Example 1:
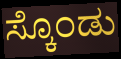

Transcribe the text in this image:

ಸ್ಕೊಂಡು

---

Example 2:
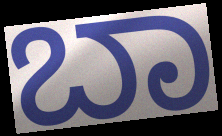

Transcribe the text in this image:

ಬಾ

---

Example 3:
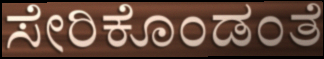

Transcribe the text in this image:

ಸೇರಿಕೊಂಡಂತೆ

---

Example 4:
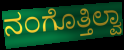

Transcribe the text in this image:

ನಂಗೊತ್ತಿಲ್ವಾ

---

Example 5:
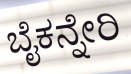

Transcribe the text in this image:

ಬೈಕನ್ನೇರಿ